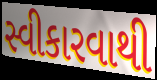
સ્વીકારવાથી